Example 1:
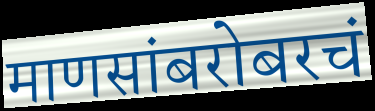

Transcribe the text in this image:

माणसांबरोबरचं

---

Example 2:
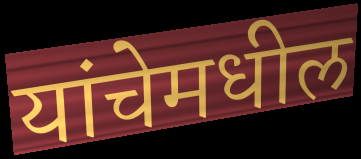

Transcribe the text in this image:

यांचेमधील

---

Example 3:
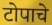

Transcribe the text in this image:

टोपाचे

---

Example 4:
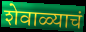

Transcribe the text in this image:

शेवाळ्याचं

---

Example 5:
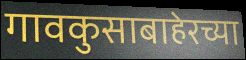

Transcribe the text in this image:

गावकुसाबाहेरच्या